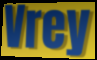
Vrey